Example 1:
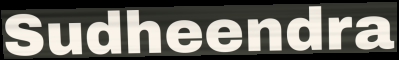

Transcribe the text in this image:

Sudheendra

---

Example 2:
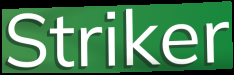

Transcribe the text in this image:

Striker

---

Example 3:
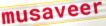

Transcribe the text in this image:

musaveer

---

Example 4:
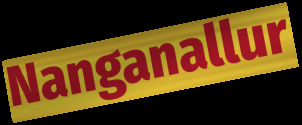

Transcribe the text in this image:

Nanganallur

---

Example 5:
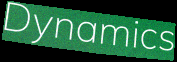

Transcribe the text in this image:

Dynamics